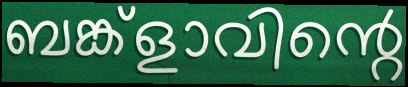
ബങ്ക്ളാവിന്റെ